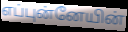
எப்புன்னேயின்